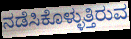
ನಡೆಸಿಕೊಳ್ಳುತ್ತಿರುವ